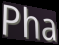
Pha